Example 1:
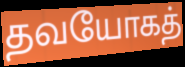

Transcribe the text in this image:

தவயோகத்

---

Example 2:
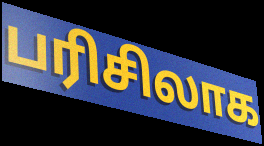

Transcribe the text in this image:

பரிசிலாக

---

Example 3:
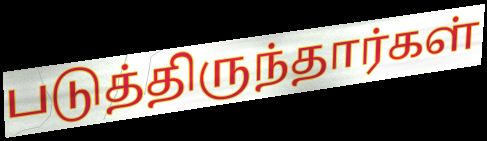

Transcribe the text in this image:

படுத்திருந்தார்கள்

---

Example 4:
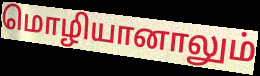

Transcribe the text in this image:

மொழியானாலும்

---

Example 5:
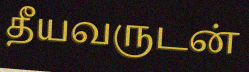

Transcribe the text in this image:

தீயவருடன்